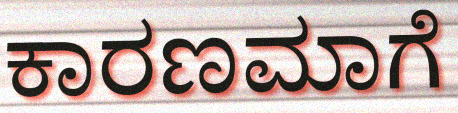
ಕಾರಣಮಾಗೆ